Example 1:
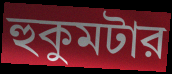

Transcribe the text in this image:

হুকুমটার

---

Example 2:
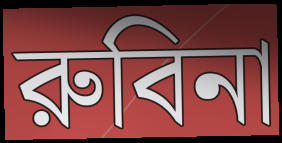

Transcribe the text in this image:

রুবিনা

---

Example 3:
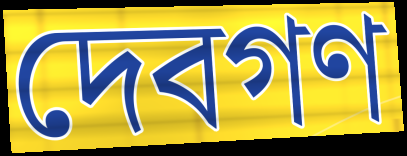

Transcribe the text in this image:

দেবগণ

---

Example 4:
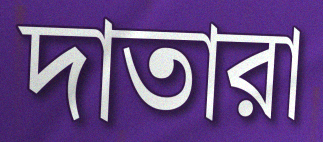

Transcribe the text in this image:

দাতারা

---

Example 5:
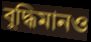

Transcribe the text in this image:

বুদ্ধিমানও